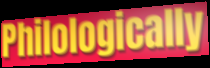
Philologically